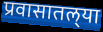
प्रवासातल्या